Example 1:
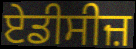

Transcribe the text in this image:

ਏਡੀਸੀਜ਼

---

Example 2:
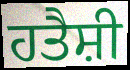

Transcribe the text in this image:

ਹਤੈਸ਼ੀ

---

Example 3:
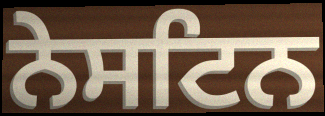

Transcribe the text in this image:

ਨੇਸਟਿਨ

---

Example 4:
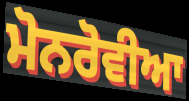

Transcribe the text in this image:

ਮੋਨਰੋਵੀਆ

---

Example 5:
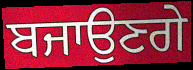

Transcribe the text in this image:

ਬਜਾਉਣਗੇ